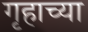
गृहाच्या